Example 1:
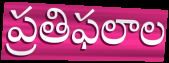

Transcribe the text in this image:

ప్రతిఫలాల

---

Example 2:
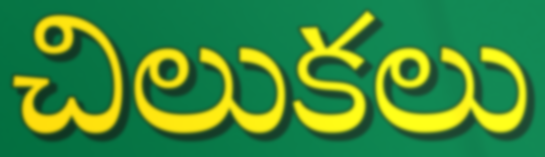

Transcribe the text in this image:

చిలుకలు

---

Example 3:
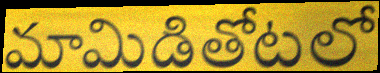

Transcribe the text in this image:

మామిడితోటలో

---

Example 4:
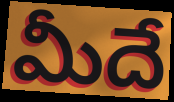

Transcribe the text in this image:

మీదే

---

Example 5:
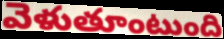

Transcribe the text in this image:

వెళుతూంటుంది